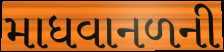
માધવાનળની